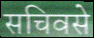
सचिवसे